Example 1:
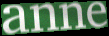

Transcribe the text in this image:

anne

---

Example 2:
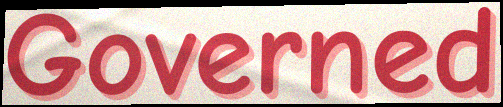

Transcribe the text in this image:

Governed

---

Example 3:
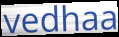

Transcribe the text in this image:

vedhaa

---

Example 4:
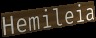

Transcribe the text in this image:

Hemileia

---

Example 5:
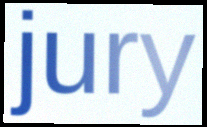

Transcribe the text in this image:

jury